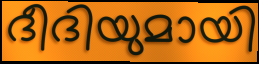
ദീദിയുമായി